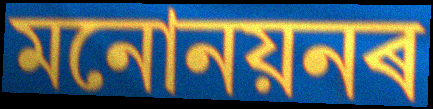
মনোনয়নৰ